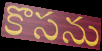
కొసను